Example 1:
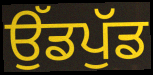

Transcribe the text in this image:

ਉੱਡਪੁੱਡ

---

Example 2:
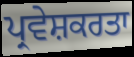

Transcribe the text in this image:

ਪ੍ਰਵੇਸ਼ਕਰਤਾ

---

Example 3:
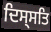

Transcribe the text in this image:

ਦਿਸ੍ਸਤਿ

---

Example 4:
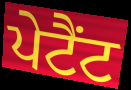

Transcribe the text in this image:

ਪੇਟੈਂਟ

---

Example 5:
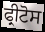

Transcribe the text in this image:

ਫ੍ਰੀਟੋਸ